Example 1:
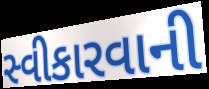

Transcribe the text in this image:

સ્વીકારવાની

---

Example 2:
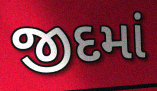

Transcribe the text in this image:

જીદમાં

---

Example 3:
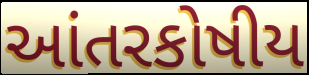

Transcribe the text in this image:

આંતરકોષીય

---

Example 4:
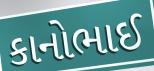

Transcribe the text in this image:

કાનોભાઈ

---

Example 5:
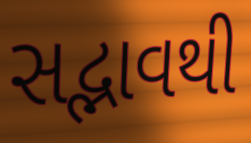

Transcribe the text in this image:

સદ્ભાવથી